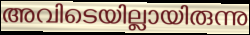
അവിടെയില്ലായിരുന്നു